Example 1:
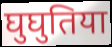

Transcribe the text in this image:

घुघुतिया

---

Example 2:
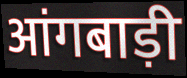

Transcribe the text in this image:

आंगबाड़ी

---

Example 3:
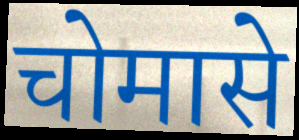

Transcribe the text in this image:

चोमासे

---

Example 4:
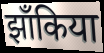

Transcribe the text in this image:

झाँकिया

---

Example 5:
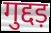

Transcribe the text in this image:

गुद्दड़